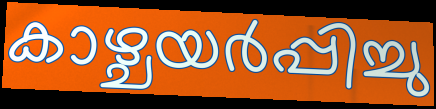
കാഴ്ചയർപ്പിച്ചു